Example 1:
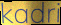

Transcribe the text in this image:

kadri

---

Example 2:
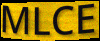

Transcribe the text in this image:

MLCE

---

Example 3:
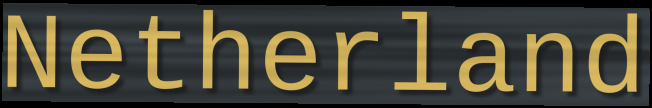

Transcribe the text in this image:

Netherland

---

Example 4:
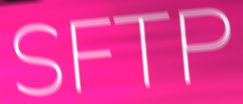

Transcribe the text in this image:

SFTP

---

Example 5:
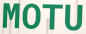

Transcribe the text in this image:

MOTU